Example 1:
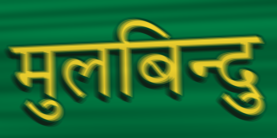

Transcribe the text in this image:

मुलबिन्दु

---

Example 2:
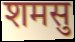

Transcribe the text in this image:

शमसु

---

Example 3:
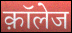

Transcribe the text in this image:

क़ॉलेज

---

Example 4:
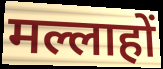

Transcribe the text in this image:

मल्लाहों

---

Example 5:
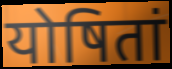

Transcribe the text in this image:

योषितां